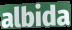
albida